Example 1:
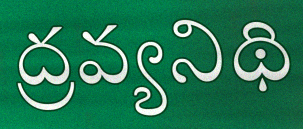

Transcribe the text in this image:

ద్రవ్యనిథి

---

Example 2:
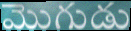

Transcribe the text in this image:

మొగుడు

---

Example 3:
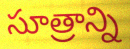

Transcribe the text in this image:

సూత్రాన్ని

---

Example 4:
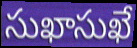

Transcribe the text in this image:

సుఖాసుఖే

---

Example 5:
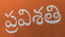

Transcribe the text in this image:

ప్రవిశతి